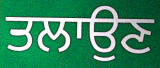
ਤਲਾਉਣ